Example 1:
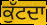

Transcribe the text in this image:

ਕੁੱਟਦਾ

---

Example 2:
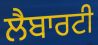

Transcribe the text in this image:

ਲੈਬਾਰਟੀ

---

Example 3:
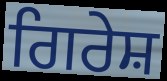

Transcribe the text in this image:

ਗਿਰੇਸ਼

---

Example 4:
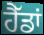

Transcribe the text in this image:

ਹੈੱਡਾਂ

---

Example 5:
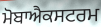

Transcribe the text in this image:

ਮੋਬਾਐਕਸਟਰਮ